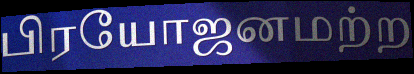
பிரயோஜனமற்ற